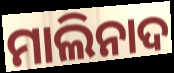
ମାଲିନାଦ